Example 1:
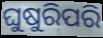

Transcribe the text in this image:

ଘୁଷୁରିପରି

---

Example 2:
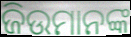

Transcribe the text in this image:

ଜିଉମାନଙ୍କ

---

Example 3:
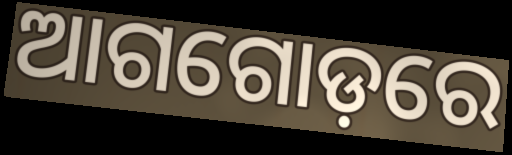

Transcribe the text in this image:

ଆଗଗୋଡ଼ରେ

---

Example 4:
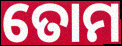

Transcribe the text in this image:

ତୋମ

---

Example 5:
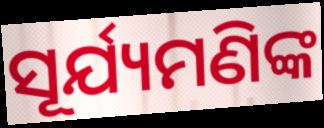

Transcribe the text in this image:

ସୂର୍ଯ୍ୟମଣିଙ୍କ